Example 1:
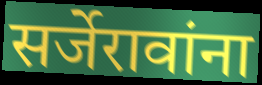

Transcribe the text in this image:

सर्जेरावांना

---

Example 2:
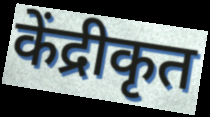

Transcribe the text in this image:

केंद्रीकृत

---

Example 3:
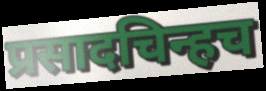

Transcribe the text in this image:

प्रसादचिन्हच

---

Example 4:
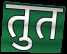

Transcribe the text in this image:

तुत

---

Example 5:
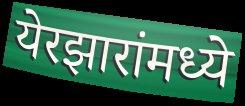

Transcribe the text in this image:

येरझारांमध्ये